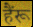
हैंरू